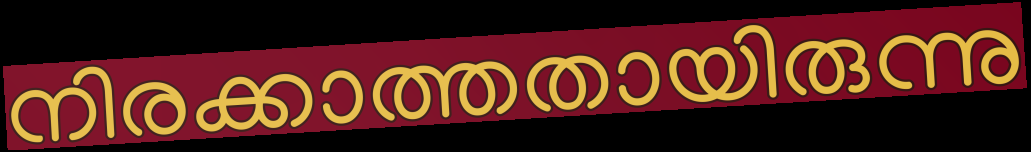
നിരക്കാത്തതായിരുന്നു